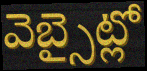
వెబ్సైట్లో